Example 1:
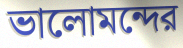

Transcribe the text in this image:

ভালোমন্দের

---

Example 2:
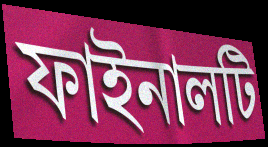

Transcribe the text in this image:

ফাইনালটি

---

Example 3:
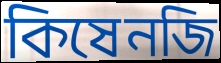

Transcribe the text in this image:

কিষেনজি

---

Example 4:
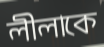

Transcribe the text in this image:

লীলাকে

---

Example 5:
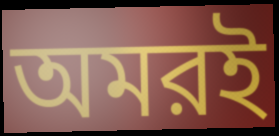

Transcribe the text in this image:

অমরই